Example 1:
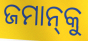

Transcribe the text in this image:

ଜମାନ୍‍କୁ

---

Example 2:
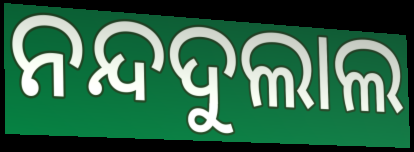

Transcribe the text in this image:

ନନ୍ଦଦୁଲାଲ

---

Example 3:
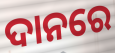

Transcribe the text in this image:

ଦାନରେ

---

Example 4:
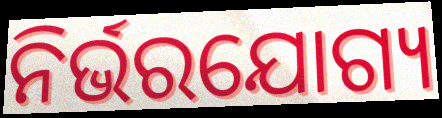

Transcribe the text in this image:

ନିର୍ଭରଯୋଗ୍ୟ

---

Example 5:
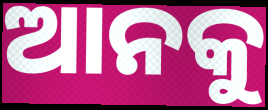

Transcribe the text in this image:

ଆନକୁ